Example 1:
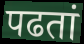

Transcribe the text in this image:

पढतां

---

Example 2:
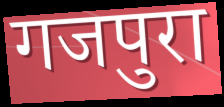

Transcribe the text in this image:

गजपुरा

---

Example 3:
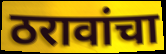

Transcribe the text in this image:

ठरावांचा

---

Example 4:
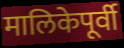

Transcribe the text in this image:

मालिकेपूर्वी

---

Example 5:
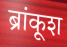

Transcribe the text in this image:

ब्रांकूश